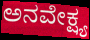
ಅನವೇಕ್ಷ್ಯ